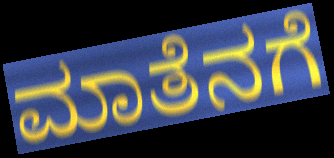
ಮಾತೆನಗೆ